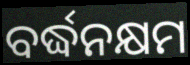
ବର୍ଦ୍ଧନକ୍ଷମ